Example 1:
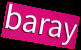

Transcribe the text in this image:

baray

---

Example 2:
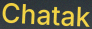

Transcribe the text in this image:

Chatak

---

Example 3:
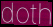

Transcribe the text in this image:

doth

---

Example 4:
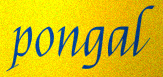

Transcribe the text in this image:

pongal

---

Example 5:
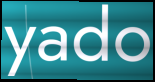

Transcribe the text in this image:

yado